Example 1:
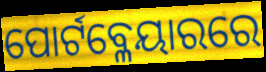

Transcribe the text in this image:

ପୋର୍ଟବ୍ଳେୟାରରେ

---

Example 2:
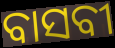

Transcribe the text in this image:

ବାସବୀ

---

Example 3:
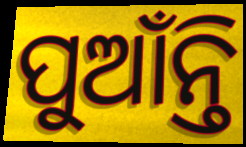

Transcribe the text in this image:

ପୁଆଁନ୍ତି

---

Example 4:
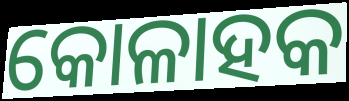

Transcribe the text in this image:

କୋଳାହକ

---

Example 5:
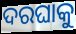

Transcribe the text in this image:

ଦରଘାକୁ